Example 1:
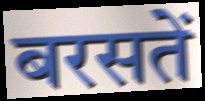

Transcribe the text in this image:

बरसतें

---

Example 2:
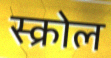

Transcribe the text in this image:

स्क्रोल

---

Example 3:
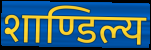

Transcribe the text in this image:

शाण्डिल्य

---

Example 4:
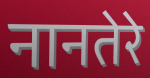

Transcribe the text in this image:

नानतेरे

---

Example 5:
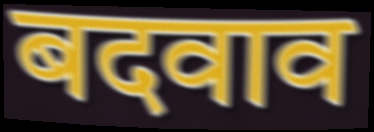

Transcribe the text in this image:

बदवाव